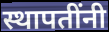
स्थापतींनी